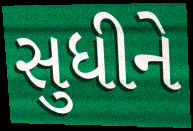
સુધીને